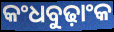
କଂଧବୁଢ଼ାଂକ